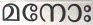
മനോഃ